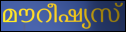
മൗറീഷ്യസ്